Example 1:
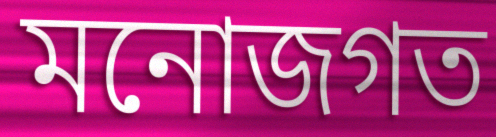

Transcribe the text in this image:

মনোজগত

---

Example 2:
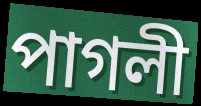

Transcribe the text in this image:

পাগলী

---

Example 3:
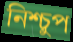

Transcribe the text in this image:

নিশ্চুপ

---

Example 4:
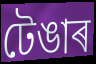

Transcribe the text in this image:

টেঙাৰ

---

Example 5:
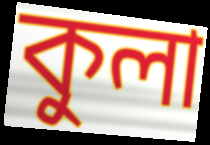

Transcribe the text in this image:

কুলা